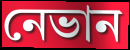
নেভান